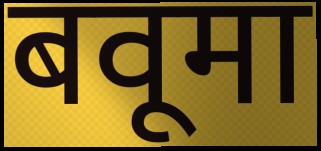
बवूमा